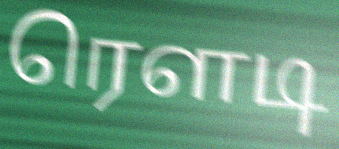
ரெளடி